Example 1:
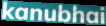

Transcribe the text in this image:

kanubhai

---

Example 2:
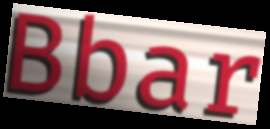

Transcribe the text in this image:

Bbar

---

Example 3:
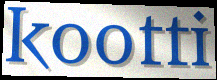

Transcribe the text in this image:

kootti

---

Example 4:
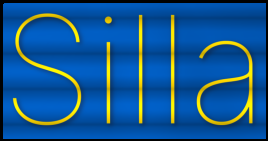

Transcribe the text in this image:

Silla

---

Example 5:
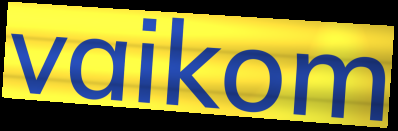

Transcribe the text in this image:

vaikom